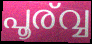
പൂര്വ്വ